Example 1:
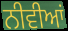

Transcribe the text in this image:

ਨੀਵੀਆਂ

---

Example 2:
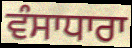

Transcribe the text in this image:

ਵੰਸਾਧਾਰਾ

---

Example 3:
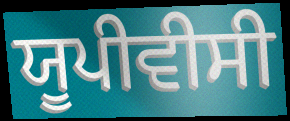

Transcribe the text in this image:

ਯੂਪੀਵੀਸੀ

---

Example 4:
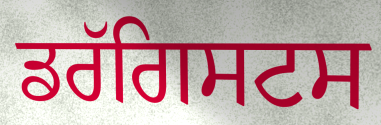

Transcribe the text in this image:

ਡਰੱਗਿਸਟਸ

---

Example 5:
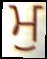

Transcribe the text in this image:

ਮੁ